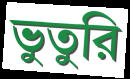
ভুতুরি